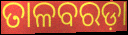
ତାଳବରଡ଼ା